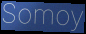
Somoy